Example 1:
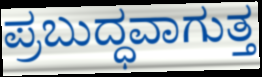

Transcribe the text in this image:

ಪ್ರಬುದ್ಧವಾಗುತ್ತ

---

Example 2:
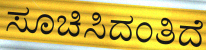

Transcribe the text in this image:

ಸೂಚಿಸಿದಂತಿದೆ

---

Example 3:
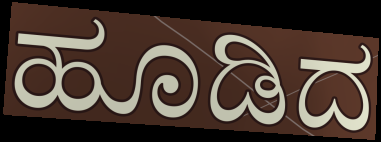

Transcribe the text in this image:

ಹೂಡಿದ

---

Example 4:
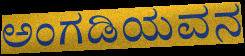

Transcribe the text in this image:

ಅಂಗಡಿಯವನ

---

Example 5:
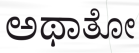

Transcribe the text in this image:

ಅಥಾತೋ